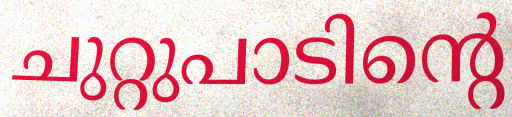
ചുറ്റുപാടിന്റെ